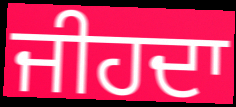
ਜੀਹਦਾ